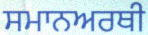
ਸਮਾਨਅਰਥੀ